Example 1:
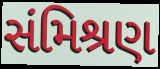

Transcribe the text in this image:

સંમિશ્રણ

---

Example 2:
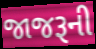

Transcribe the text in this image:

જાજરૂની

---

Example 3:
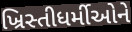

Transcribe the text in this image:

ખ્રિસ્તીધર્મીઓને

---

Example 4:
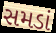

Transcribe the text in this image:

સમડાં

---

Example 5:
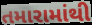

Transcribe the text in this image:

તમારામાંથી